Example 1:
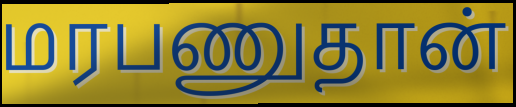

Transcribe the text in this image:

மரபணுதான்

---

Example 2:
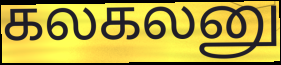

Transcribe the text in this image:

கலகலனு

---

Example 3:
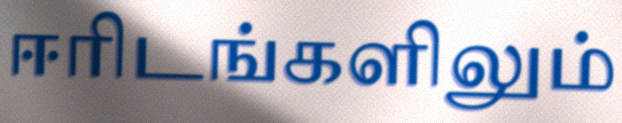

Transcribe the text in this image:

ஈரிடங்களிலும்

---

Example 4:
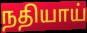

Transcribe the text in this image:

நதியாய்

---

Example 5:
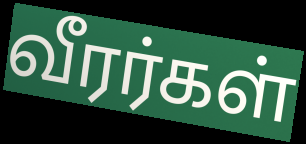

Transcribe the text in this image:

வீரர்கள்